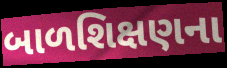
બાળશિક્ષણના